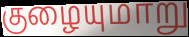
குழையுமாறு